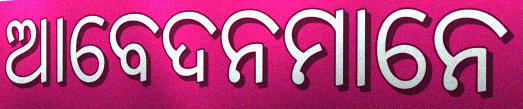
ଆବେଦନମାନେ